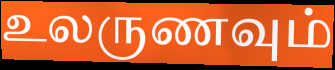
உலருணவும்